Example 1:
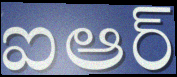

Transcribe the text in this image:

ఐఆర్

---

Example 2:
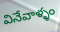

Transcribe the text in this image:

వినేవాళ్ళం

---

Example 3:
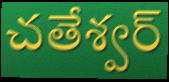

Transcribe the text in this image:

చతేశ్వర్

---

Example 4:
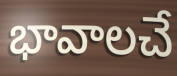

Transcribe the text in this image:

భావాలచే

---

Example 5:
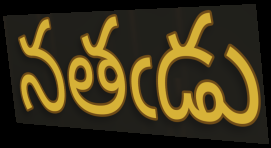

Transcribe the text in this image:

నతఁడు